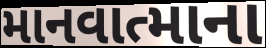
માનવાત્માના